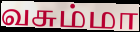
வசும்மா